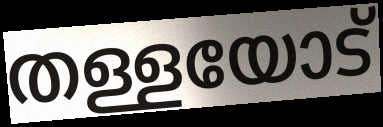
തള്ളയോട്